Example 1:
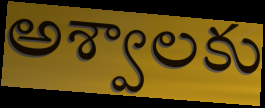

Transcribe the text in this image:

అశ్వాలకు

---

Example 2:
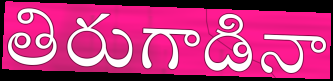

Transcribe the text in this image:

తిరుగాడినా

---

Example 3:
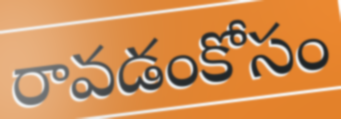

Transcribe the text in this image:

రావడంకోసం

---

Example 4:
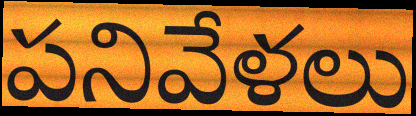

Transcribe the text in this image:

పనివేళలు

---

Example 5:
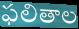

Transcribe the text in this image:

ఫలితాల